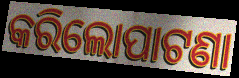
କରିଲୋପାଟଣା